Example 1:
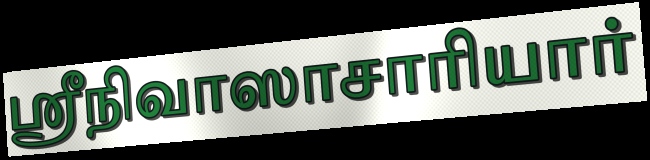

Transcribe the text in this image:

ஸ்ரீநிவாஸாசாரியார்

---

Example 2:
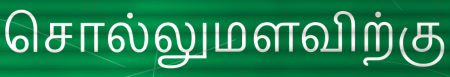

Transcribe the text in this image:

சொல்லுமளவிற்கு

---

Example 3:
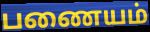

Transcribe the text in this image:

பணையம்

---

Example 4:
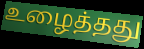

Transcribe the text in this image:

உழைத்தது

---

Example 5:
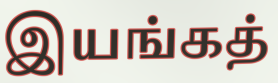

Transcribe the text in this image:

இயங்கத்